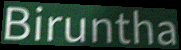
Biruntha